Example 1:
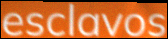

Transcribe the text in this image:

esclavos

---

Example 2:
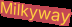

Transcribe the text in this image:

Milkyway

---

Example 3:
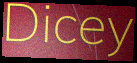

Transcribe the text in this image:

Dicey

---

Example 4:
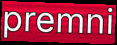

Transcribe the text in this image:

premni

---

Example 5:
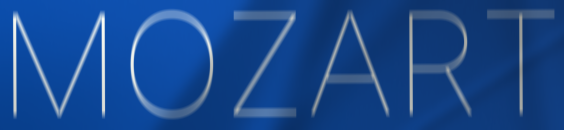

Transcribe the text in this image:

MOZART